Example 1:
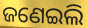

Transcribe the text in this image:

ଜଣେଇଲି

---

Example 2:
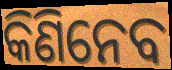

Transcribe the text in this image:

କିଣିନେବ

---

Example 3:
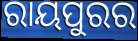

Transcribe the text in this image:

ରାୟପୁରର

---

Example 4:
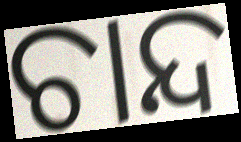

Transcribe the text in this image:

ଚାନ୍ଦ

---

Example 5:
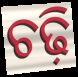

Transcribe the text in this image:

ଚଢ଼ି